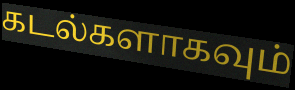
கடல்களாகவும்